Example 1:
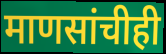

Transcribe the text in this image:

माणसांचीही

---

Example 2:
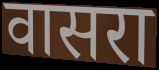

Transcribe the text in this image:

वासरा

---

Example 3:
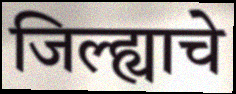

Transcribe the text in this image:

जिल्ह्याचे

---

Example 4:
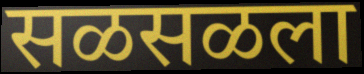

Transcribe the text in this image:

सळसळला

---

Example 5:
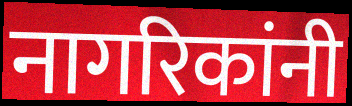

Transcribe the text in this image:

नागरिकांनी